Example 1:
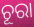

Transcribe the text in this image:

ଚୂରା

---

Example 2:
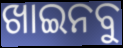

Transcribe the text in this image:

ଖାଇନବୁ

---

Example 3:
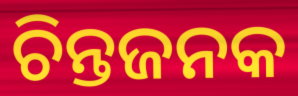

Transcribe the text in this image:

ଚିନ୍ତଜନକ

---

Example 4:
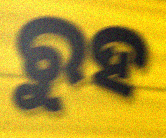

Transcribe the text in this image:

ରୁହ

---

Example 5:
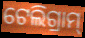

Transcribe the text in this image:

ଟେଲିଗ୍ରାମ୍